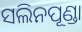
ସଲିନପୂଣ୍ଡା